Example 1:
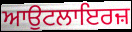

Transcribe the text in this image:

ਆਉਟਲਾਇਰਜ਼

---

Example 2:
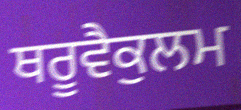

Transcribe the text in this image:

ਥਰੂਵੈਕੁਲਮ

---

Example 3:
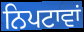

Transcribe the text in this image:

ਨਿਪਟਾਵਾਂ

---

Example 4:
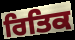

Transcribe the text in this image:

ਰਿਤਿਕ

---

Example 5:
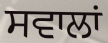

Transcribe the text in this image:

ਸਵਾਲਾਂ